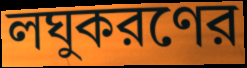
লঘুকরণের